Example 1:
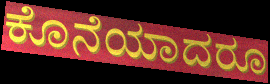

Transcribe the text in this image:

ಕೊನೆಯಾದರೂ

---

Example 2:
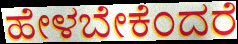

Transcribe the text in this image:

ಹೇಳಬೇಕೆಂದರೆ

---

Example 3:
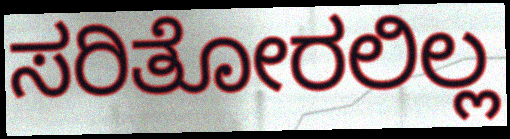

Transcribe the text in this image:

ಸರಿತೋರಲಿಲ್ಲ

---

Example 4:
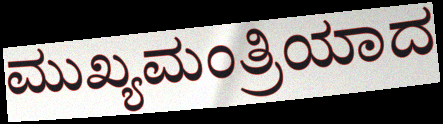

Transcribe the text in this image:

ಮುಖ್ಯಮಂತ್ರಿಯಾದ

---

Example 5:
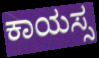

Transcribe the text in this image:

ಕಾಯಸ್ಸ